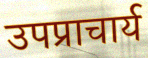
उपप्राचार्य